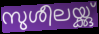
സുശീലയ്ക്കു്